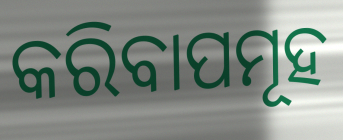
କରିବାପମୂହ